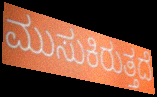
ಮುಸುಕಿರುತ್ತದೆ